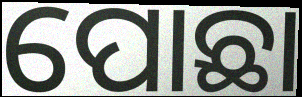
ପୋଛା